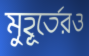
মুহূর্তেরও